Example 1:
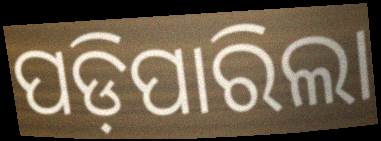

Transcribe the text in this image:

ପଡ଼ିପାରିଲା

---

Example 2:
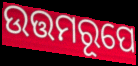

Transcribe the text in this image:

ଉତ୍ତମରୂପେ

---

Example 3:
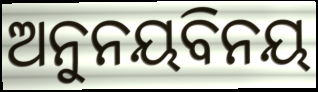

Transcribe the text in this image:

ଅନୁନୟବିନୟ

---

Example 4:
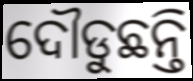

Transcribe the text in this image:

ଦୌଡୁଛନ୍ତି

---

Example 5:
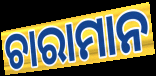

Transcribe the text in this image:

ଚାରାମାନ